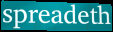
spreadeth